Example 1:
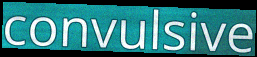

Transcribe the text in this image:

convulsive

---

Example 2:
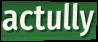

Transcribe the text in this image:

actully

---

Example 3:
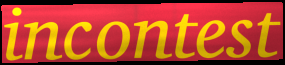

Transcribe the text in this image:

incontest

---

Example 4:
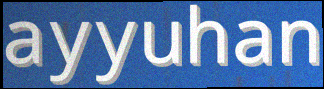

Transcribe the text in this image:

ayyuhan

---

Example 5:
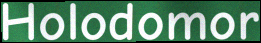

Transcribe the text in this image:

Holodomor